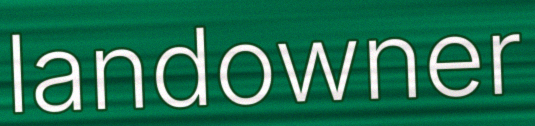
landowner